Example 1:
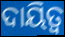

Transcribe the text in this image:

ଦାୟିତ୍ବ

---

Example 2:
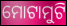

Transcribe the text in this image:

ମୋଟାମୁଟି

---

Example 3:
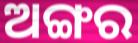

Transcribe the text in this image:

ଅଙ୍ଗର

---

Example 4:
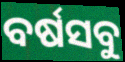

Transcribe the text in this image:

ବର୍ଷସବୁ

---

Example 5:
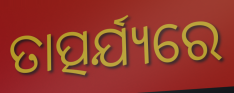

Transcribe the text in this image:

ତାତ୍ପର୍ଯ୍ୟରେ